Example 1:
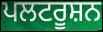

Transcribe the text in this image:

ਪਲਟਰੂਸ਼ਨ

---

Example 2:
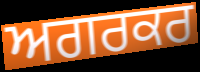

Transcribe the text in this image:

ਅਗਰਕਰ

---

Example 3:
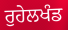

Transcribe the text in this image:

ਰੁਹੇਲਖੰਡ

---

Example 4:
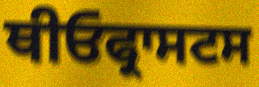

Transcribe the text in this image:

ਥੀਓਫ੍ਰਾਸਟਸ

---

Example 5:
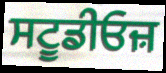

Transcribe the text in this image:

ਸਟੂਡੀਓਜ਼